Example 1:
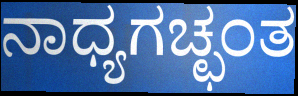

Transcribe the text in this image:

ನಾಧ್ಯಗಚ್ಛಂತ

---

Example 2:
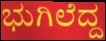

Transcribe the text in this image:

ಭುಗಿಲೆದ್ದ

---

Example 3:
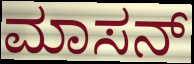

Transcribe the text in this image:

ಮಾಸನ್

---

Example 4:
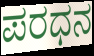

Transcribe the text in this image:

ಪರಧನ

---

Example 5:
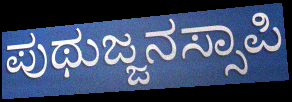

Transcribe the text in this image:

ಪುಥುಜ್ಜನಸ್ಸಾಪಿ